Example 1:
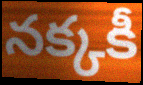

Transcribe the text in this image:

నక్కకీ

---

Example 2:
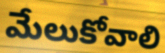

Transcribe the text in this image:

మేలుకోవాలి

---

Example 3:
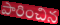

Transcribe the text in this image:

పారించిన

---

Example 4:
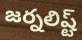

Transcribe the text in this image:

జర్నలిష్ట్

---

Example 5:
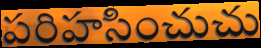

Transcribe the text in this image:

పరిహసించుచు